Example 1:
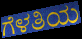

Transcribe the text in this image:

ಗೆಳತಿಯ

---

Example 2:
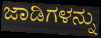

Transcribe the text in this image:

ಜಾಡಿಗಳನ್ನು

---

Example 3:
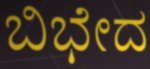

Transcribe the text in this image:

ಬಿಭೇದ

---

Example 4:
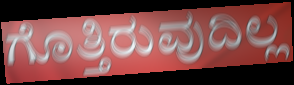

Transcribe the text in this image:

ಗೊತ್ತಿರುವುದಿಲ್ಲ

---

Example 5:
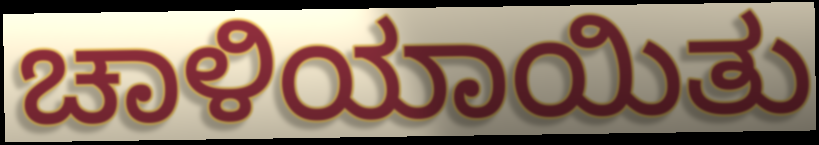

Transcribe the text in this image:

ಚಾಳಿಯಾಯಿತು